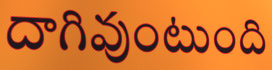
దాగివుంటుంది